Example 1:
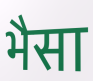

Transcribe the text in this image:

भैसा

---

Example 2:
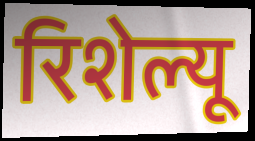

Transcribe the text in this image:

रिशेल्यू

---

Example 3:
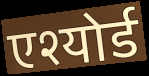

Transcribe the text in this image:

एश्योर्ड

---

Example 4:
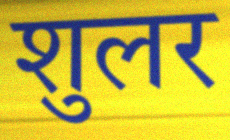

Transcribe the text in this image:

शुलर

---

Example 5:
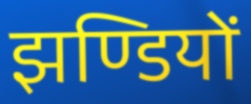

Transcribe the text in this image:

झण्डियों